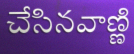
చేసినవాణ్ణి